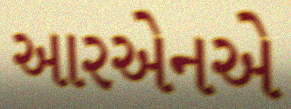
આરએનએ